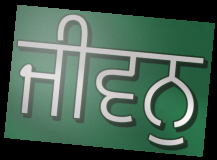
ਜੀਵਨੁ